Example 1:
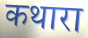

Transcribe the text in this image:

कथारा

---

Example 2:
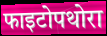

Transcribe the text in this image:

फाइटोपथोरा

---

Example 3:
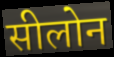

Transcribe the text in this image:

सीलोन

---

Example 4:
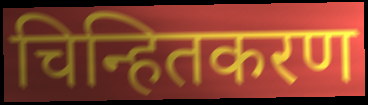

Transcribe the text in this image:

चिन्हितकरण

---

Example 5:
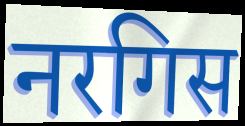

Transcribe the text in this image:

नरगिस